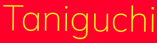
Taniguchi